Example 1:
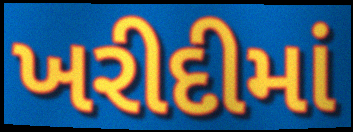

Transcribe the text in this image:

ખરીદીમાં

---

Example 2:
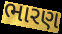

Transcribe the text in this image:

ભારણ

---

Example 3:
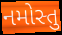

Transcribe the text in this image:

નમોસ્તુ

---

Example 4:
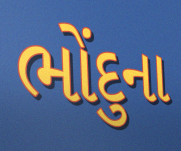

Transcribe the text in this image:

ભોંદુના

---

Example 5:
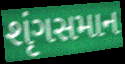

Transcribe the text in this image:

શૃંગસમાન